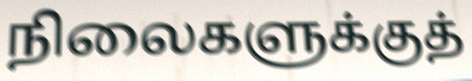
நிலைகளுக்குத்